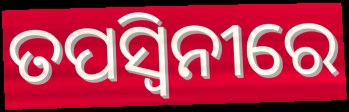
ତପସ୍ଵିନୀରେ